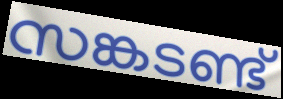
സങ്കടണ്ട്